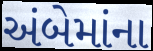
અંબેમાંના